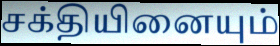
சக்தியினையும்